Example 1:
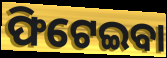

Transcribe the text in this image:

ଫିଟେଇବା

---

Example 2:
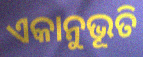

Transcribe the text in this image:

ଏକାନୁଭୂତି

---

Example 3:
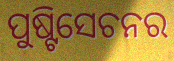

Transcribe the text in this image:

ପୁଷ୍ଟିସେଚନର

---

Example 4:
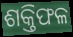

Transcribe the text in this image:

ଶକ୍ତିଫଳ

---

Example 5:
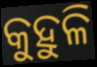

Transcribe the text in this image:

କୁହୁଳି